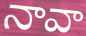
నావా